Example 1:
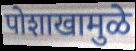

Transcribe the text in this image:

पोशाखामुळे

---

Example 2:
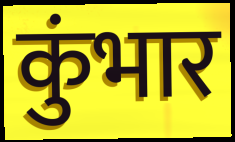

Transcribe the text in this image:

कुंभार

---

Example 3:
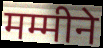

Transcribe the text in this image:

मम्मीने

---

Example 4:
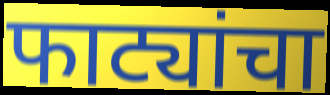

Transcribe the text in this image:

फाट्यांचा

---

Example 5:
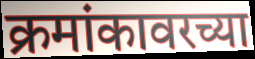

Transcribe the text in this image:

क्रमांकावरच्या